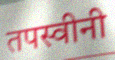
तपस्वीनी